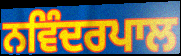
ਨਵਿੰਦਰਪਾਲ